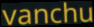
vanchu